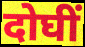
दोघीं